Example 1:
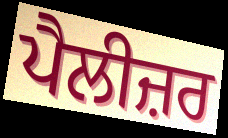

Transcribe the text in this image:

ਪੈਲੀਜ਼ਰ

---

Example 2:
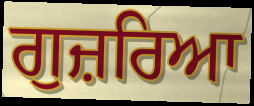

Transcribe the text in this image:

ਗੁਜ਼ਰਿਆ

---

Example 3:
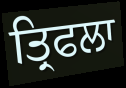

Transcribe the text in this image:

ਤ੍ਰਿਫਲਾ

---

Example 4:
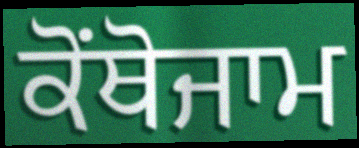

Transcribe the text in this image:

ਕੋਂਥੋਜਾਮ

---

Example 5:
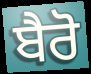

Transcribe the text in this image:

ਬੈਰੋ